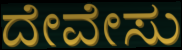
ದೇವೇಸು